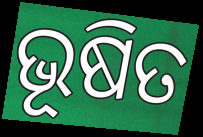
ଭୂଷିତ